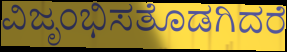
ವಿಜೃಂಭಿಸತೊಡಗಿದರೆ